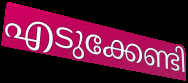
എടുക്കേണ്ടി